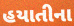
હયાતીના